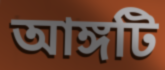
আঙ্গটি